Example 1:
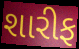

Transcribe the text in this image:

શારીફ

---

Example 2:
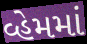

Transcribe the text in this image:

વ્હેમમાં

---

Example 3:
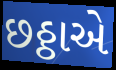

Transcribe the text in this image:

છઠ્ઠાએ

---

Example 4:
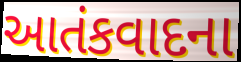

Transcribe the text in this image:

આતંકવાદના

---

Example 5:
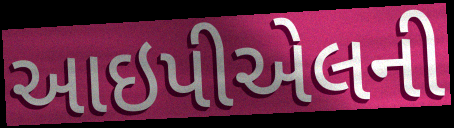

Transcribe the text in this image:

આઇપીએલની